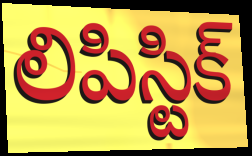
లిపిస్టిక్